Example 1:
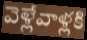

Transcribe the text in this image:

వెళ్లేవాళ్లకి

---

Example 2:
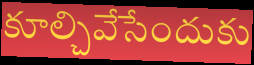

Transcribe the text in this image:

కూల్చివేసేందుకు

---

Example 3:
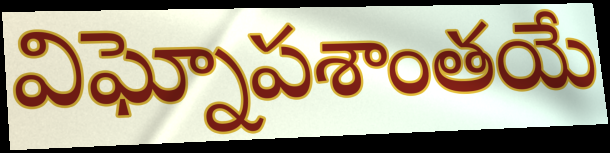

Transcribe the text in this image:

విఘ్నోపశాంతయే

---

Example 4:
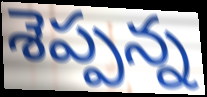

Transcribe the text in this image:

శెప్పన్న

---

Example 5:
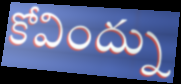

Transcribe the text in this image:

కోవింద్ను